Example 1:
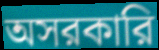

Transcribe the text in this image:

অসরকারি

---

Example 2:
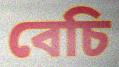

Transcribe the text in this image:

বেচি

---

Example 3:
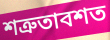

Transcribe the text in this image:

শত্রুতাবশত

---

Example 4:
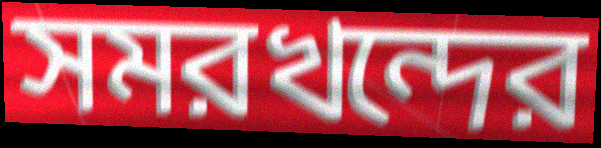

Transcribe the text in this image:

সমরখন্দের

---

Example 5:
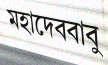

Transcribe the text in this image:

মহাদেববাবু